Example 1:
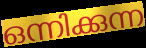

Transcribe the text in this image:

ഒന്നിക്കുന്ന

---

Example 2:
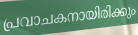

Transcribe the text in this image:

പ്രവാചകനായിരിക്കും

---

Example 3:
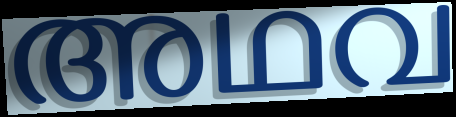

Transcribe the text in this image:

അഥവ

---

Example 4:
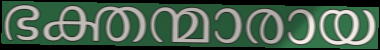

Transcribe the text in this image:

ഭക്തന്മാരായ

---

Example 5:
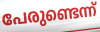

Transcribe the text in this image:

പേരുണ്ടെന്ന്